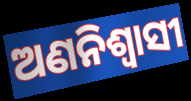
ଅଣନିଶ୍ୱାସୀ